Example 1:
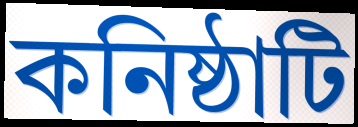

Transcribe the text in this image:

কনিষ্ঠাটি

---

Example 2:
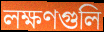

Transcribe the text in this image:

লক্ষণগুলি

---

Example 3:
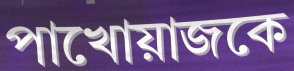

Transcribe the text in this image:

পাখোয়াজকে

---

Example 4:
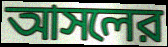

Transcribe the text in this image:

আসলের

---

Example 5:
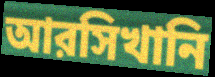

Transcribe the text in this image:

আরসিখানি